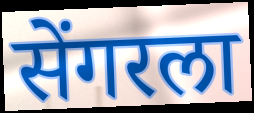
सेंगरला